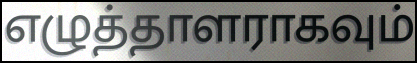
எழுத்தாளராகவும்